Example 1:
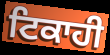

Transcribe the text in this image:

ਟਿਕਾਹੀ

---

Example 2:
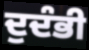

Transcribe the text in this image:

ਦੁਦੰਭੀ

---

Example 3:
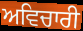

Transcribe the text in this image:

ਅਵਿਚਾਰੀ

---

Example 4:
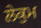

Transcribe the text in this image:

ਲੇਕੁਮ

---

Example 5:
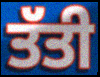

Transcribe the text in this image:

ਤੱਤੀ